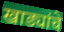
खाड्यांचे